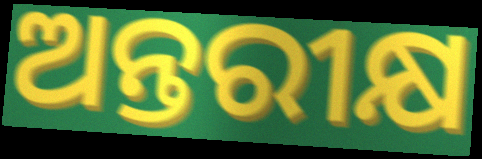
ଅନ୍ତରୀକ୍ଷ